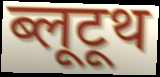
ब्‍लूटूथ